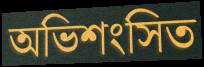
অভিশংসিত